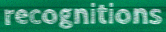
recognitions